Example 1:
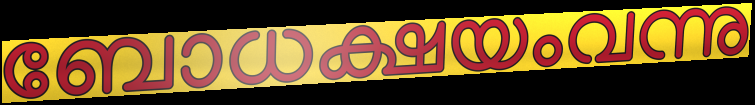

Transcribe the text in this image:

ബോധക്ഷയംവന്നു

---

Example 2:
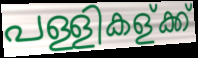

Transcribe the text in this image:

പള്ളികള്ക്ക്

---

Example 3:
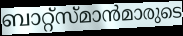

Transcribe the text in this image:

ബാറ്റ്സ്മാൻമാരുടെ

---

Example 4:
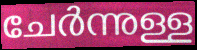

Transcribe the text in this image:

ചേർന്നുള്ള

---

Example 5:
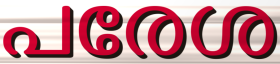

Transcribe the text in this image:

പരേശ